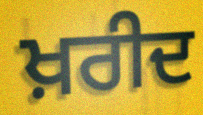
ਖ਼ਰੀਦ